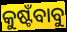
କୁଷ୍ଟଁବାବୁ